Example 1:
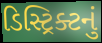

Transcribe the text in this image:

ડિસ્ટ્રિક્ટનું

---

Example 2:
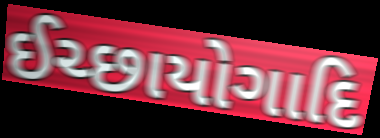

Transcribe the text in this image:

ઈચ્છાયોગાદિ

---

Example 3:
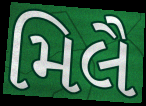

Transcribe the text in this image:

મિલૈ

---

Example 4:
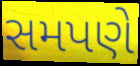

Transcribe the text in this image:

સમપણે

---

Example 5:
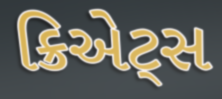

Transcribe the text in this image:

ક્રિએટ્સ